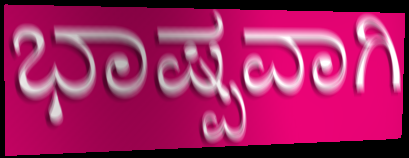
ಭಾಷ್ಪವಾಗಿ